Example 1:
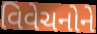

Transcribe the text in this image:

વિવેચનોને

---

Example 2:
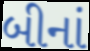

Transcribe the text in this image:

બીનાં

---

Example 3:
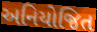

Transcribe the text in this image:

અનિયોજિત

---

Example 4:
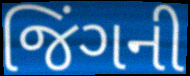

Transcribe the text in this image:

જિંગની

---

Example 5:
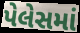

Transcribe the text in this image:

પેલેસમાં